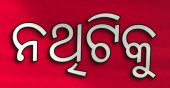
ନଥିଟିକୁ